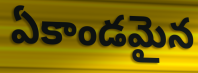
ఏకాండమైన